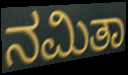
ನಮಿತಾ